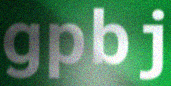
gpbj